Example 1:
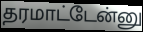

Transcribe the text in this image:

தரமாட்டேன்னு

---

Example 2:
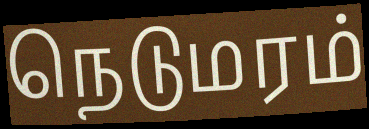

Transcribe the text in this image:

நெடுமரம்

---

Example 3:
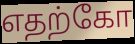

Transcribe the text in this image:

எதற்கோ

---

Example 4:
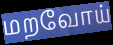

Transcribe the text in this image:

மறவோய்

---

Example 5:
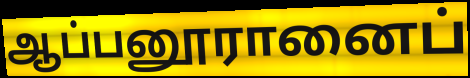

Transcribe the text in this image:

ஆப்பனூரானைப்